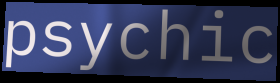
psychic